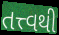
તત્ત્વથી